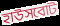
হাউসবোট